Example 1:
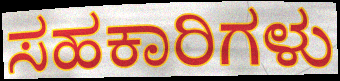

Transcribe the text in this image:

ಸಹಕಾರಿಗಳು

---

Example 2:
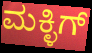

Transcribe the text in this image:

ಮಕ್ಳಿಗ್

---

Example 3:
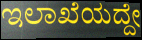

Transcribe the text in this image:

ಇಲಾಖೆಯದ್ದೇ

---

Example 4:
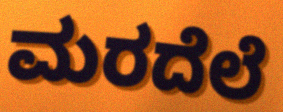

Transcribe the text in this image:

ಮರದೆಲೆ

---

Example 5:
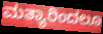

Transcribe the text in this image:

ಮತ್ಯಾರಿಂದಲೂ